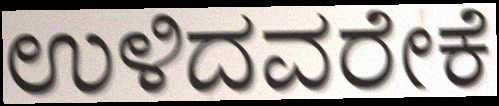
ಉಳಿದವರೇಕೆ